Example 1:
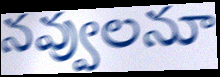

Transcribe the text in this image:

నవ్వులనూ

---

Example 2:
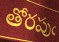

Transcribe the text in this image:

తోరపుఁ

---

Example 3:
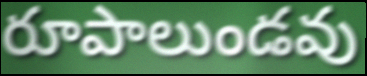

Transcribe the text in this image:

రూపాలుండవు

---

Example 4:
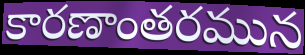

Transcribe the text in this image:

కారణాంతరమున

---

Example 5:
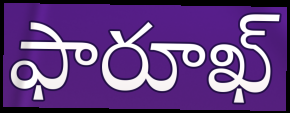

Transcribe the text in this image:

ఫారూఖ్